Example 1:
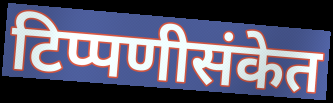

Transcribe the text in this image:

टिप्पणीसंकेत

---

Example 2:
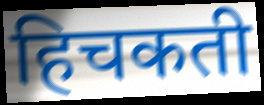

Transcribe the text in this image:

हिचकती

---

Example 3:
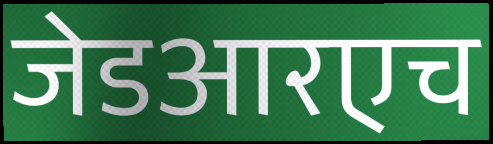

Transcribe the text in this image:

जेडआरएच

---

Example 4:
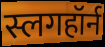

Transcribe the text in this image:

स्लगहॉर्न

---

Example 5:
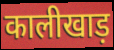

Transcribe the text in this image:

कालीखाड़